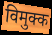
विमुक्क